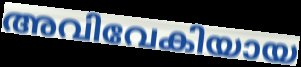
അവിവേകിയായ